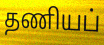
தணியப்